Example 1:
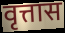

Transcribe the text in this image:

वृत्तास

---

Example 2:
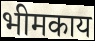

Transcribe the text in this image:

भीमकाय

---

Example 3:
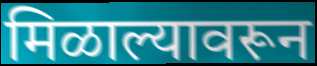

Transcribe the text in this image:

मिळाल्यावरून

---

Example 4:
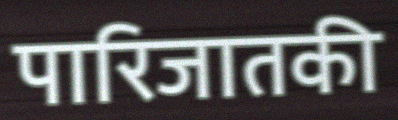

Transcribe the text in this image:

पारिजातकी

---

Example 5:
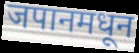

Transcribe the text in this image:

जपानमधून